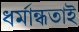
ধর্মান্ধতাই